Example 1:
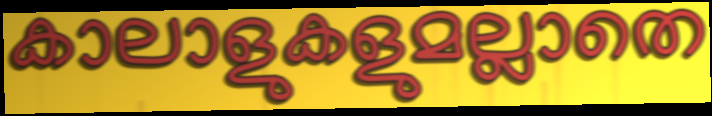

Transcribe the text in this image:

കാലാളുകളുമല്ലാതെ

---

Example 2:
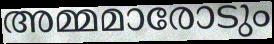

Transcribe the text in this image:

അമ്മമാരോടും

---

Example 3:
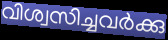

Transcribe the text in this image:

വിശ്വസിച്ചവർക്കു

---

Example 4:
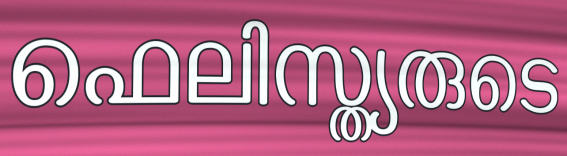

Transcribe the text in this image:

ഫെലിസ്ത്യരുടെ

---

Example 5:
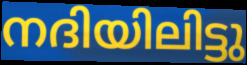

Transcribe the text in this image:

നദിയിലിട്ടു